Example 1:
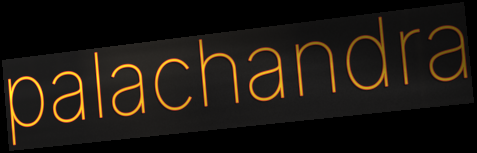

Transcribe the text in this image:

palachandra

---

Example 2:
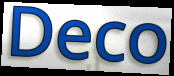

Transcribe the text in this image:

Deco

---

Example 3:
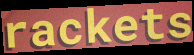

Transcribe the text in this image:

rackets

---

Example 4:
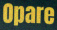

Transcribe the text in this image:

Opare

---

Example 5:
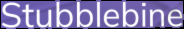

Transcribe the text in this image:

Stubblebine